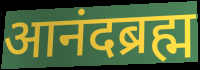
आनंदब्रह्म